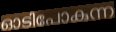
ഓടിപോകുന്ന